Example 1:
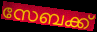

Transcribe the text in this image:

സേബക്ക്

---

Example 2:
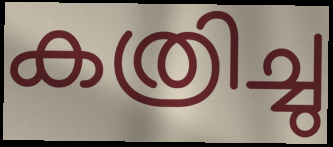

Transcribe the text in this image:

കത്രിച്ചു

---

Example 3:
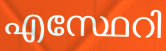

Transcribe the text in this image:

എസ്ഥേറി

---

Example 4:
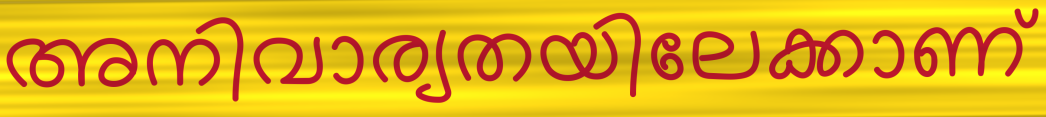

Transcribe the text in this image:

അനിവാര്യതയിലേക്കാണ്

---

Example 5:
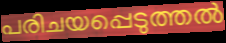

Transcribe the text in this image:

പരിചയപ്പെടുത്തൽ